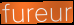
fureur